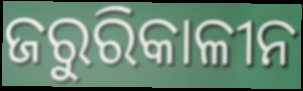
ଜରୁରିକାଳୀନ